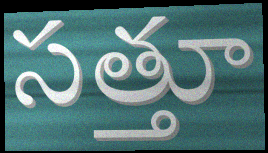
సత్తూ